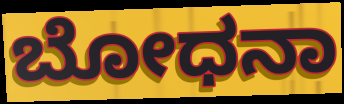
ಬೋಧನಾ